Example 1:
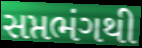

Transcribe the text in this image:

સપ્તભંગથી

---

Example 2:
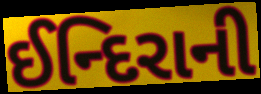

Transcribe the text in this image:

ઈન્દિરાની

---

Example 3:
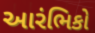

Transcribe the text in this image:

આરંભિકો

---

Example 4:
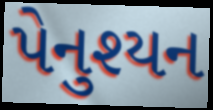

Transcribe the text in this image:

પેનુશ્યન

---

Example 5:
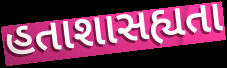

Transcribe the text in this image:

હતાશાસહ્યતા